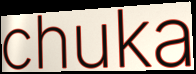
chuka